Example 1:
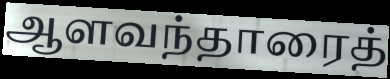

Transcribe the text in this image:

ஆளவந்தாரைத்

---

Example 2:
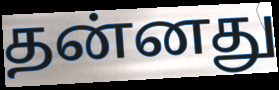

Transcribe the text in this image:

தன்னது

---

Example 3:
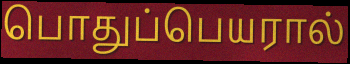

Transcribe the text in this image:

பொதுப்பெயரால்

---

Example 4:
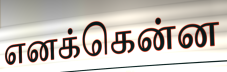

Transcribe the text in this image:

எனக்கென்ன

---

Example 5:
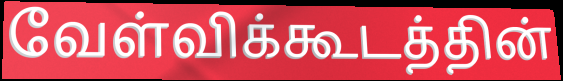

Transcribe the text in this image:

வேள்விக்கூடத்தின்